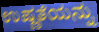
ಉಷ್ಣತೆಯನ್ನು